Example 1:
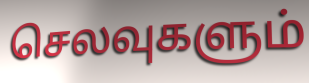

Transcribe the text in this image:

செலவுகளும்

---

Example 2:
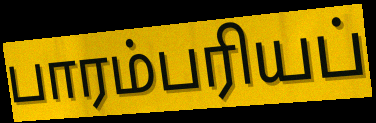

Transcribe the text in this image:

பாரம்பரியப்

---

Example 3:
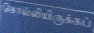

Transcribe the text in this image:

சொல்லியிருக்கப்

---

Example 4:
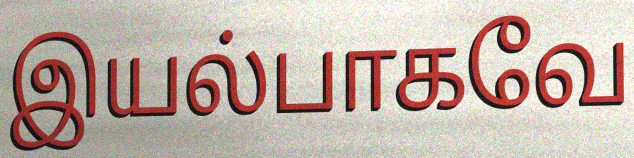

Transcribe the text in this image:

இயல்பாகவே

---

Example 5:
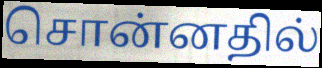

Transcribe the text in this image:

சொன்னதில்